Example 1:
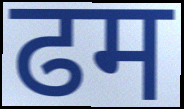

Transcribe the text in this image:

ढम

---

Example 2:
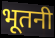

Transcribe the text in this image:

भूतनी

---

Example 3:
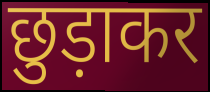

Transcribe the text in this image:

छुड़ाकर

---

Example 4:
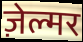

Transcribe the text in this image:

ज़ेल्मर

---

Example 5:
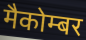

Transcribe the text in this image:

मैकोम्बर